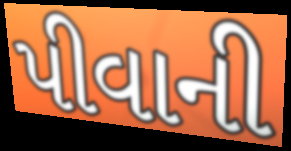
પીવાની